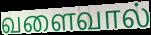
வளைவால்